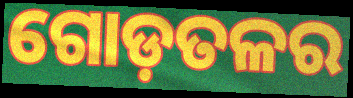
ଗୋଡ଼ତଳର